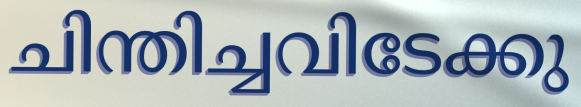
ചിന്തിച്ചവിടേക്കു